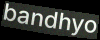
bandhyo